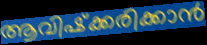
ആവിഷ്‌ക്കരിക്കാൻ